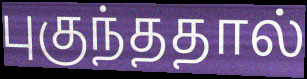
புகுந்ததால்